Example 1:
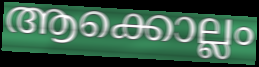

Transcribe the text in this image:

ആക്കൊല്ലം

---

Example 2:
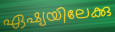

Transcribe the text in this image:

ഏഷ്യയിലേക്കു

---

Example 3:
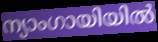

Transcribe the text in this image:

ന്യാംഗായിയിൽ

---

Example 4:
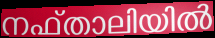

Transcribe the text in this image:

നഫ്താലിയിൽ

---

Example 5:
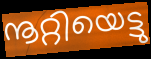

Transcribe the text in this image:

നൂറ്റിയെട്ടു